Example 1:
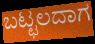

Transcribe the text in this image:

ಬಟ್ಟಲದಾಗ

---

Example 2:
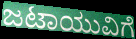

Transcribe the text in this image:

ಜಟಾಯುವಿಗೆ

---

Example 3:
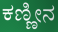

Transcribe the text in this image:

ಕಣ್ಣೀನ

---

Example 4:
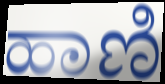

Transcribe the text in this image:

ಹಾಣಿ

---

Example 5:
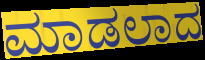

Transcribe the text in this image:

ಮಾಡಲಾದ